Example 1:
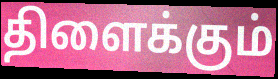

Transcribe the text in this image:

திளைக்கும்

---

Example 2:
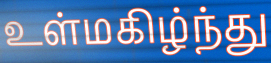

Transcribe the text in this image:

உள்மகிழ்ந்து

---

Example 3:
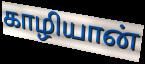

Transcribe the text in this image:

காழியான்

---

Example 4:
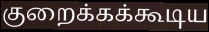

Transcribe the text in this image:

குறைக்கக்கூடிய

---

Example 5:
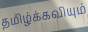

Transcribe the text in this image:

தமிழ்க்கவியும்